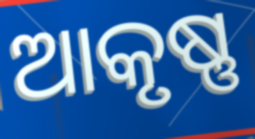
ଆକୃଷ୍ଣ